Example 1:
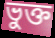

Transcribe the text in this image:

ভুক্ত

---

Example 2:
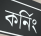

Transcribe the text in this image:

কর্নিং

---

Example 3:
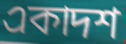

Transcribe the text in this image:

একাদশ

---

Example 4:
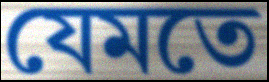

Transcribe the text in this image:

যেমতে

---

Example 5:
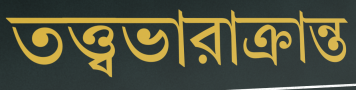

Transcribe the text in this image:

তত্ত্বভারাক্রান্ত